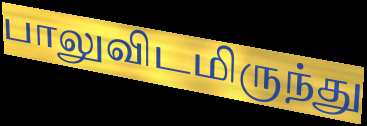
பாலுவிடமிருந்து